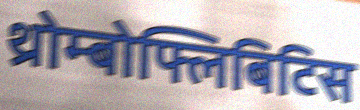
थ्रोम्बोफ्लिबिटिस